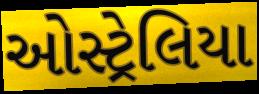
ઓસ્ટ્રેલિયા